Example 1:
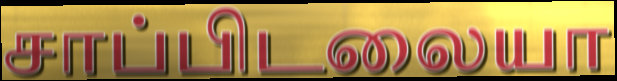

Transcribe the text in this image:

சாப்பிடலையா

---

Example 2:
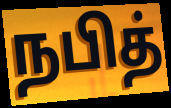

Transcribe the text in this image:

நபித்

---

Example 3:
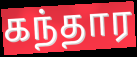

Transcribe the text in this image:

கந்தார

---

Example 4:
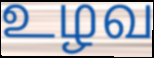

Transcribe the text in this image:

உழவ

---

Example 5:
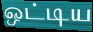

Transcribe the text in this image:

ஒட்டிய